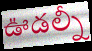
ఊడల్నీ